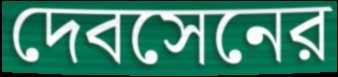
দেবসেনের